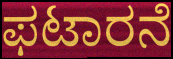
ಫಟಾರನೆ